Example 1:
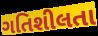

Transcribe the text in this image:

ગતિશીલતા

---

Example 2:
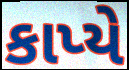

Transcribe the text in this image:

કાપ્યે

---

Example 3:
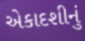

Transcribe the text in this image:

એકાદશીનું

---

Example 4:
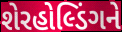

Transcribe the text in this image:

શેરહોલ્ડિંગને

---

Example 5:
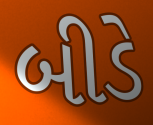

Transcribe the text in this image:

બીડે